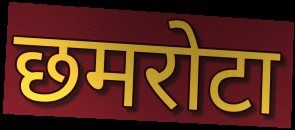
छमरोटा